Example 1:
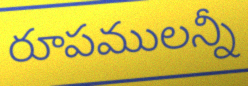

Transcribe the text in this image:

రూపములన్నీ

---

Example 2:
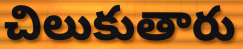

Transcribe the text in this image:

చిలుకుతారు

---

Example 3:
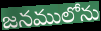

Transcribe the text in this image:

జనములోను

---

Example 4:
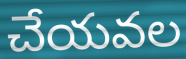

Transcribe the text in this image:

చేయవల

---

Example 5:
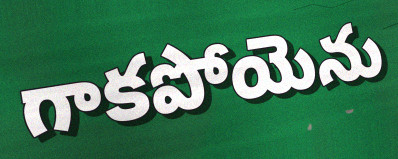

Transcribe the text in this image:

గాకపోయెను